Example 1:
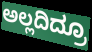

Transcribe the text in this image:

ಅಲ್ಲದಿದ್ರೂ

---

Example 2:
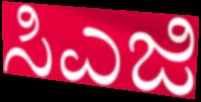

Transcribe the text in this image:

ಸಿಎಜಿ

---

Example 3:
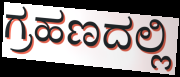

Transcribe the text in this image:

ಗ್ರಹಣದಲ್ಲಿ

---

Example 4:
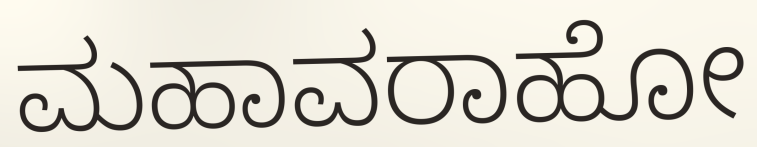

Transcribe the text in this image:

ಮಹಾವರಾಹೋ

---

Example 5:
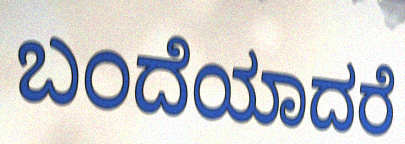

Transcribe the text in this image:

ಬಂದೆಯಾದರೆ